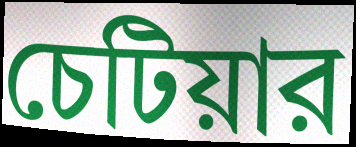
চেটিয়ার